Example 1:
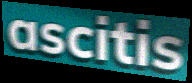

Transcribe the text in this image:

ascitis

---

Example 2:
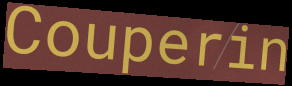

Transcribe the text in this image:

Couperin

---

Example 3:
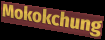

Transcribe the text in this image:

Mokokchung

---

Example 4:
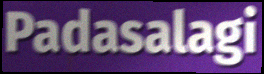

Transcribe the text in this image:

Padasalagi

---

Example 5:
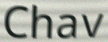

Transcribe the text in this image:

Chav